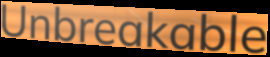
Unbreakable